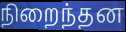
நிறைந்தன